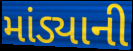
માંડ્યાની